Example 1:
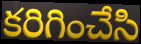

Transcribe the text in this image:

కరిగించేసి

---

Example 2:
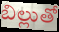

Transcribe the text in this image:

బిల్లుతో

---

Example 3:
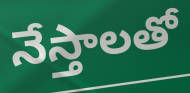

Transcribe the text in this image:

నేస్తాలతో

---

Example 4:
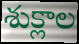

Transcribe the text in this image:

శుక్లాల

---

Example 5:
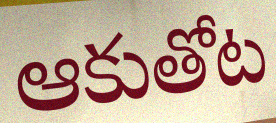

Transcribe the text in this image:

ఆకుతోట